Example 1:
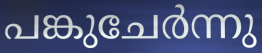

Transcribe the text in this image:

പങ്കുചേർന്നു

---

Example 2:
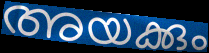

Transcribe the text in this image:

അയക്കും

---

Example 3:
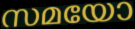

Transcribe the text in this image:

സമയോ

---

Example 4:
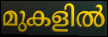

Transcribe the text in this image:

മുകളിൽ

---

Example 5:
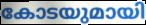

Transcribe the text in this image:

കോടയുമായി